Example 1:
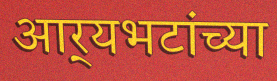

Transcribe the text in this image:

आर्यभटांच्या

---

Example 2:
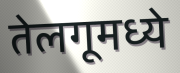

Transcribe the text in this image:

तेलगूमध्ये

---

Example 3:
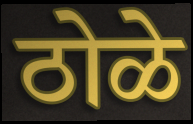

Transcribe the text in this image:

ठोळे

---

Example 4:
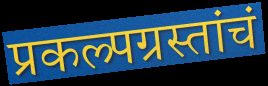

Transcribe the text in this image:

प्रकल्पग्रस्तांचं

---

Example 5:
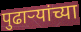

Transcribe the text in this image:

पुढाऱ्यांच्या